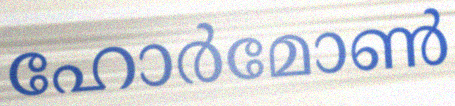
ഹോർമോൺ